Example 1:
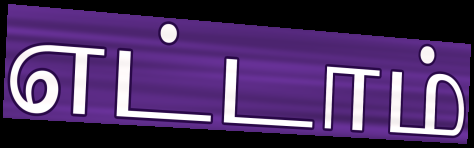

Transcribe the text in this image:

எட்டாம்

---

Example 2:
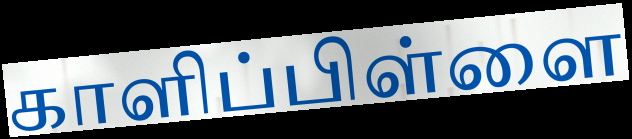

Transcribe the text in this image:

காளிப்பிள்ளை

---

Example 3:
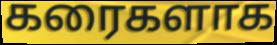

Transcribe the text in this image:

கரைகளாக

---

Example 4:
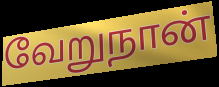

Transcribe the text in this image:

வேறுநான்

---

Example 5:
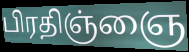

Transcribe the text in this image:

பிரதிஞ்ஞை